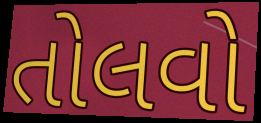
તોલવો